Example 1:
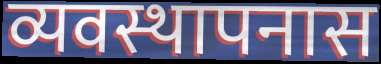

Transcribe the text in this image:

व्यवस्थापनास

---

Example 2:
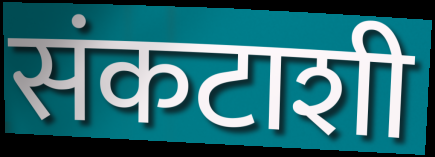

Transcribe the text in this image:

संकटाशी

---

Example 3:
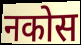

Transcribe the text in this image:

नकोस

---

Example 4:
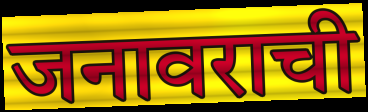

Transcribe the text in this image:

जनावराची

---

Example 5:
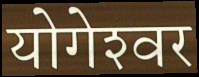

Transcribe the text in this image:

योगेश्वर